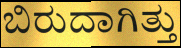
ಬಿರುದಾಗಿತ್ತು